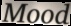
Mood